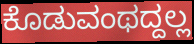
ಕೊಡುವಂಥದ್ದಲ್ಲ